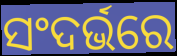
ସଂଦର୍ଭରେ